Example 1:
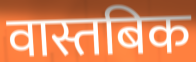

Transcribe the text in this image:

वास्तबिक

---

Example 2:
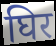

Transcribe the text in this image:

घिर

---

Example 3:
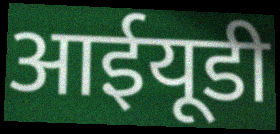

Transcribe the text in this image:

आईयूडी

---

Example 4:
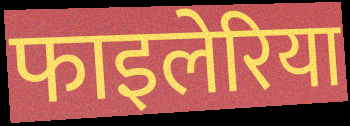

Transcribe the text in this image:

फाइलेरिया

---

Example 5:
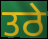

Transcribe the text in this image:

उठे